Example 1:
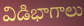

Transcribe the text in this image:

విడిభాగాలు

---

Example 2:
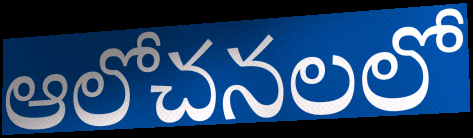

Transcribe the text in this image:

ఆలోచనలలో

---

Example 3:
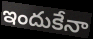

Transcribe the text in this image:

ఇందుకేనా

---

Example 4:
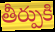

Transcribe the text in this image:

తీర్పుకి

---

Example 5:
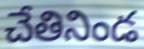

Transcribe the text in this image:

చేతినిండ